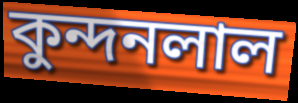
কুন্দনলাল